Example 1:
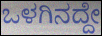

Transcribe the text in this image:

ಒಳಗಿನದ್ದೇ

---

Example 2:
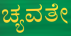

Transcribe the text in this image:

ಚ್ಯವತೇ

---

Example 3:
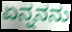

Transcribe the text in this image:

ಏನ್ನನನು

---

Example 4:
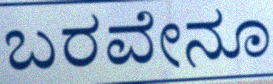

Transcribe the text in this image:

ಬರವೇನೂ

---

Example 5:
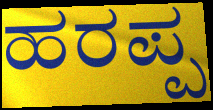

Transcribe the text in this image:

ಹರಪ್ಪ